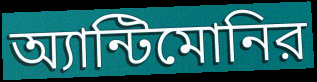
অ্যান্টিমোনির